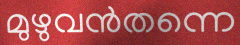
മുഴുവൻതന്നെ